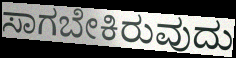
ಸಾಗಬೇಕಿರುವುದು